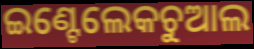
ଇଣ୍ଟେଲେକଚୁଆଲ